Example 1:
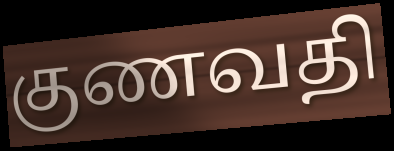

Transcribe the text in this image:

குணவதி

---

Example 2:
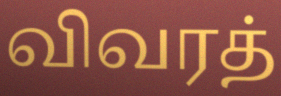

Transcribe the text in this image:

விவரத்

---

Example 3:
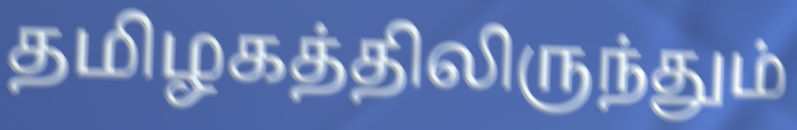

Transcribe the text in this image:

தமிழகத்திலிருந்தும்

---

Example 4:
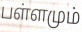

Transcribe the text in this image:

பள்ளமும்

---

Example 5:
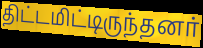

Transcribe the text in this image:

திட்டமிட்டிருந்தனர்